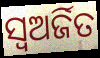
ସ୍ୱଅର୍ଜିତ